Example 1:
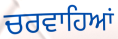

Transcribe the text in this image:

ਚਰਵਾਹਿਆਂ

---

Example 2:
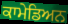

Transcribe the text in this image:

ਕਾਮੇਡਿਅਨ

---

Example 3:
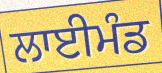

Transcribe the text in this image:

ਲਾਈਮੰਡ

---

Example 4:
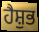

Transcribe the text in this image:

ਹੈਸ਼ੁਭ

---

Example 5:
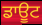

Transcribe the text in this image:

ਡਾਊਟ